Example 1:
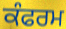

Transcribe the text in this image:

ਕੰਫਰਮ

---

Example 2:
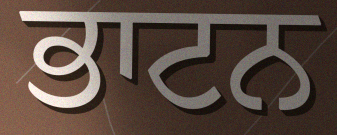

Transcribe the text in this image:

ਭਾਟਨ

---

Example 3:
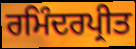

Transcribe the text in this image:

ਰਮਿੰਦਰਪ੍ਰੀਤ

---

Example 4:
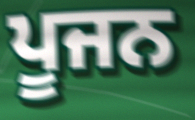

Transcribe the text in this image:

ਪੂਜਨ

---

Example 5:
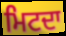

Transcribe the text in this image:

ਮਿਟਦਾ